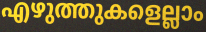
എഴുത്തുകളെല്ലാം